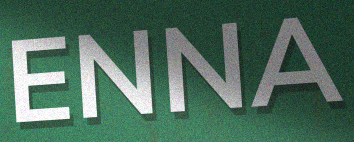
ENNA